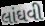
લાંઘવી